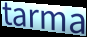
tarma